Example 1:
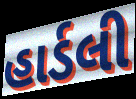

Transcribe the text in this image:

હાર્ડલી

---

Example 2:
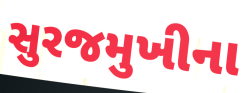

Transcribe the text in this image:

સુરજમુખીના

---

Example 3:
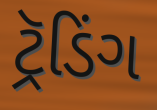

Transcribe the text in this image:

ટ્રૅડિંગ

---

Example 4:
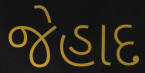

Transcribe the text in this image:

જેહાદ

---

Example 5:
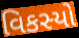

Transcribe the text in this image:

વિકસ્યો